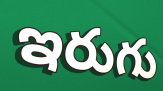
ఇరుగు